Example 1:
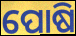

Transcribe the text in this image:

ପୋଷି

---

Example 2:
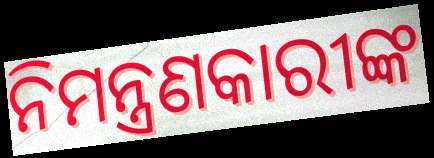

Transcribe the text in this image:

ନିମନ୍ତ୍ରଣକାରୀଙ୍କ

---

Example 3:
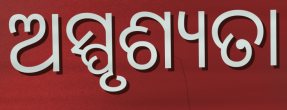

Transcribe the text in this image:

ଅସ୍ପୃଶ୍ୟତା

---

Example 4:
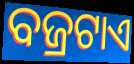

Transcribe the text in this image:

ବଜ୍ରଟାଏ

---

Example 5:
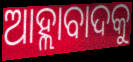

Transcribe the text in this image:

ଆହ୍ଲାବାଦକୁ